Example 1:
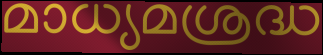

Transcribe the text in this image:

മാധ്യമശ്രദ്ധ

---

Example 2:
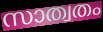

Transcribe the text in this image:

സാത്വതം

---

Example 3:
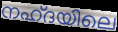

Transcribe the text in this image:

നഹ്ദയിലെ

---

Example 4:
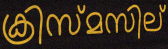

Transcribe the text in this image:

ക്രിസ്മസില്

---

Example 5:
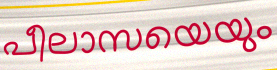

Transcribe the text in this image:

പീലാസയെയും